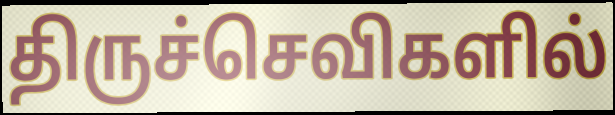
திருச்செவிகளில்